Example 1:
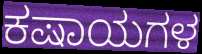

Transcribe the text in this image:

ಕಷಾಯಗಳ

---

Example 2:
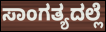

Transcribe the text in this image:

ಸಾಂಗತ್ಯದಲ್ಲೆ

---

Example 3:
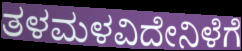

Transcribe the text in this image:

ತಳಮಳವಿದೇನಿಳೆಗೆ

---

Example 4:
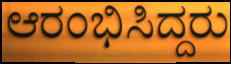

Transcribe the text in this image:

ಆರಂಭಿಸಿದ್ದರು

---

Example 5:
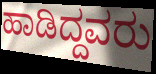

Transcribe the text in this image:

ಹಾಡಿದ್ದವರು